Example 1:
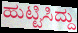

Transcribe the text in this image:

ಹುಟ್ಟಿಸಿದ್ದು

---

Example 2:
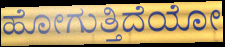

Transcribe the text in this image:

ಹೋಗುತ್ತಿದೆಯೋ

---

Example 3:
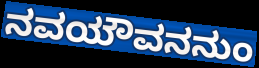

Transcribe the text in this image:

ನವಯೌವನನುಂ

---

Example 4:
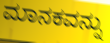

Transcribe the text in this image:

ಮಾನಕವನ್ನು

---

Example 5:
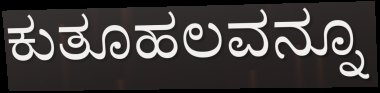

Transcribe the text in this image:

ಕುತೂಹಲವನ್ನೂ